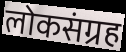
लोकसंग्रह